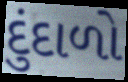
દુંદાળો